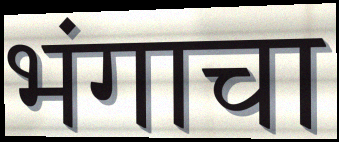
भंगाचा